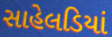
સાહેલડિયાં